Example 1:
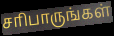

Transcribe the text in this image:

சரிபாருங்கள்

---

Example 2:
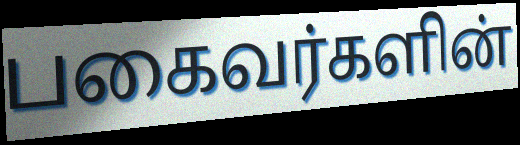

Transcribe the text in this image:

பகைவர்களின்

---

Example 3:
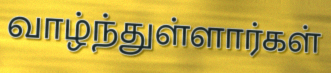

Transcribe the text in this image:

வாழ்ந்துள்ளார்கள்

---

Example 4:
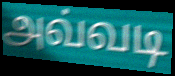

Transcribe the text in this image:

அவ்வடி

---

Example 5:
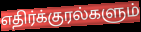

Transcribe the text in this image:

எதிர்க்குரல்களும்